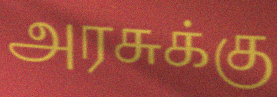
அரசுக்கு